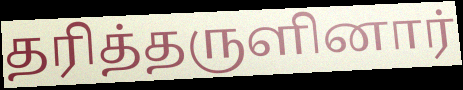
தரித்தருளினார்